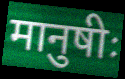
मानुषीः